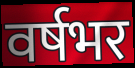
वर्षभर